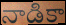
నాడికా